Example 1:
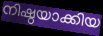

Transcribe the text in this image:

നിഷ്ഠയാക്കിയ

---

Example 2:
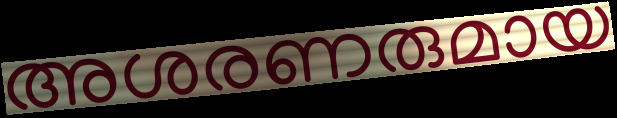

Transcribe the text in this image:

അശരണരുമായ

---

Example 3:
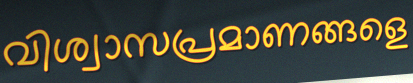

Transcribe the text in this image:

വിശ്വാസപ്രമാണങ്ങളെ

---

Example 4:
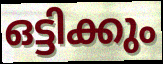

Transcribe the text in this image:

ഒട്ടിക്കും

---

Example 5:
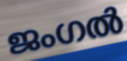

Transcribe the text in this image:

ജംഗൽ